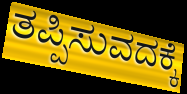
ತಪ್ಪಿಸುವದಕ್ಕೆ